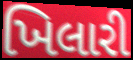
ખિલારી